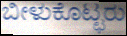
ಬೀಳುಕೊಟ್ಟರು